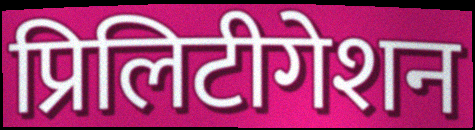
प्रिलिटीगेशन